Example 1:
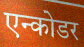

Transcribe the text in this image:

एन्कोडर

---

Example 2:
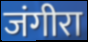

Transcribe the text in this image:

जंगीरा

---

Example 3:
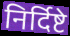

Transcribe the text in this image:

निर्दिष्टे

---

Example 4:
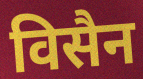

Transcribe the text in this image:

विसैन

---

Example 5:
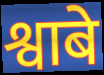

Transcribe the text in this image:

श्वाबे